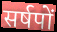
सर्षपों